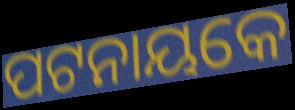
ପଟନାୟକେ